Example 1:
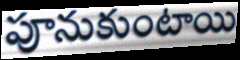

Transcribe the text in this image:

పూనుకుంటాయి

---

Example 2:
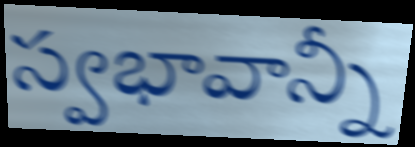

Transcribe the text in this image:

స్వభావాన్నీ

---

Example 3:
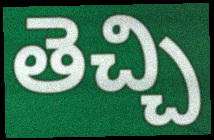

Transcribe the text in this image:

తెచ్చి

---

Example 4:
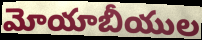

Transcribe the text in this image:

మోయాబీయుల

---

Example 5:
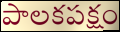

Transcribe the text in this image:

పాలకపక్షం